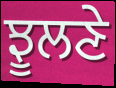
ਝੂਲਣੇ